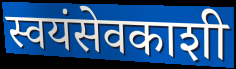
स्वयंसेवकाशी